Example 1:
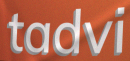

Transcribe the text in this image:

tadvi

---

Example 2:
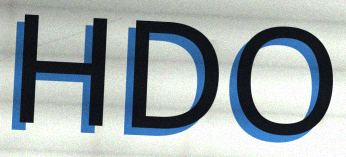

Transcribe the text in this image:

HDO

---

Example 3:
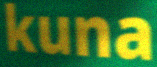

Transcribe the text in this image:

kuna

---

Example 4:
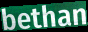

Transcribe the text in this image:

bethan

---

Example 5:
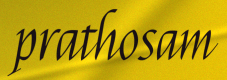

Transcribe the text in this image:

prathosam